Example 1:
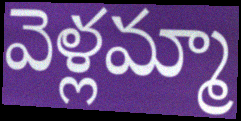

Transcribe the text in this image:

వెళ్లమ్మా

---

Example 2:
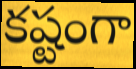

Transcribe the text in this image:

కష్టంగా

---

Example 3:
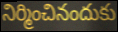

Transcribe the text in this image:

నిర్మించినందుకు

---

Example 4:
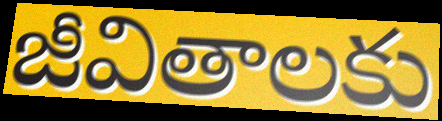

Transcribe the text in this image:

జీవితాలకు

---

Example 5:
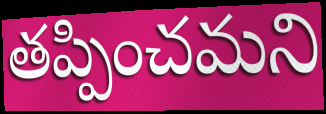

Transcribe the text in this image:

తప్పించమని